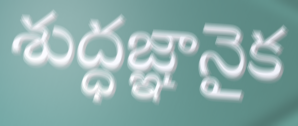
శుద్ధజ్ఞానైక